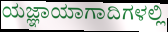
ಯಜ್ಞಾಯಾಗಾದಿಗಳಲ್ಲಿ